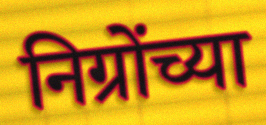
निग्रोंच्या